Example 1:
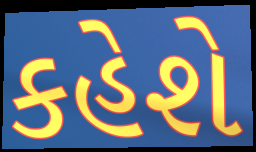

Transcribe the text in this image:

કહેશે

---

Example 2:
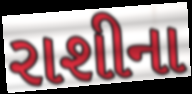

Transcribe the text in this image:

રાશીના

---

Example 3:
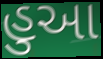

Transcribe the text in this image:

હુઆ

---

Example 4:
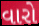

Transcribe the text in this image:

વારો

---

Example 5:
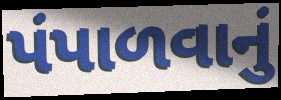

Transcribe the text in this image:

પંપાળવાનું